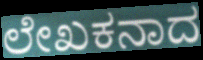
ಲೇಖಕನಾದ